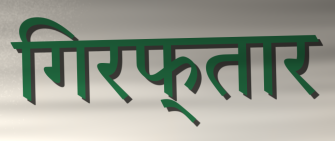
गिरफ्‌तार